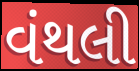
વંથલી